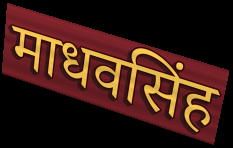
माधवसिंह